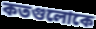
কতগুলোকে